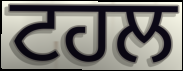
ਟਹਲ